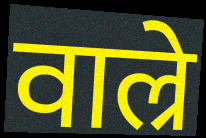
वाल्रे